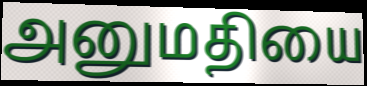
அனுமதியை